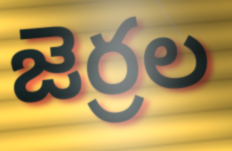
జెర్రల